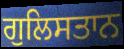
ਗੁਲਿਸਤਾਨ